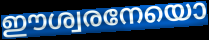
ഈശ്വരനേയൊ